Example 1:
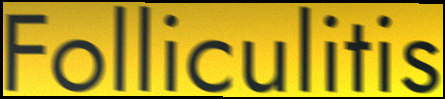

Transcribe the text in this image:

Folliculitis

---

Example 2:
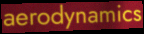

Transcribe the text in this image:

aerodynamics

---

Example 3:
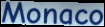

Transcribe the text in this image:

Monaco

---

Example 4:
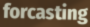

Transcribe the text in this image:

forcasting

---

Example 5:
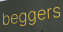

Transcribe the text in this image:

beggers